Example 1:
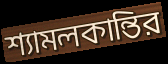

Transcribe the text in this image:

শ্যামলকান্তির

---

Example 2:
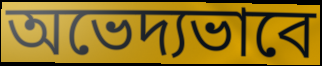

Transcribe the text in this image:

অভেদ্যভাবে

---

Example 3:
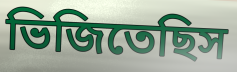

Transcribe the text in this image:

ভিজিতেছিস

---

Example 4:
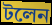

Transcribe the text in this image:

টলেন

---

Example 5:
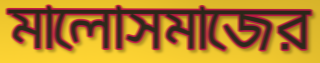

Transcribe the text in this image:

মালোসমাজের